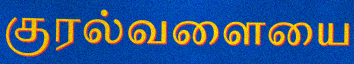
குரல்வளையை